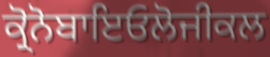
ਕ੍ਰੋਨੋਬਾਇਓਲੋਜੀਕਲ